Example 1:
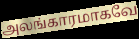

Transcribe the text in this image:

அலங்காரமாகவே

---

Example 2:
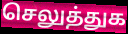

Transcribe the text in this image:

செலுத்துக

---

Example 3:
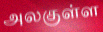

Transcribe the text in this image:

அலகுள்ள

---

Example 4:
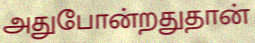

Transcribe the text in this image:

அதுபோன்றதுதான்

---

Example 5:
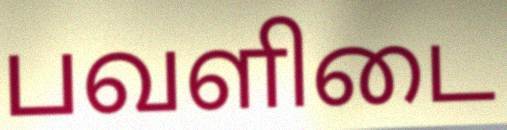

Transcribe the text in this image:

பவளிடை